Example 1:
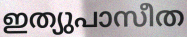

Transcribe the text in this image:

ഇത്യുപാസീത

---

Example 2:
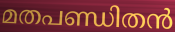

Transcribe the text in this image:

മതപണ്ഡിതൻ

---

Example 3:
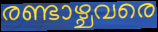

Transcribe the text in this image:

രണ്ടാഴ്ചവരെ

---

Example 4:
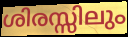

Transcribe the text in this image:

ശിരസ്സിലും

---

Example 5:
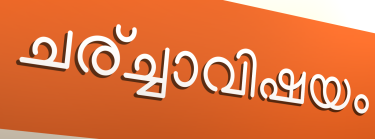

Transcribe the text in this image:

ചര്ച്ചാവിഷയം